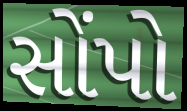
સોંપો